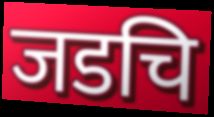
जडचि